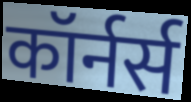
कॉर्नर्स